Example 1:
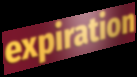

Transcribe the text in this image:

expiration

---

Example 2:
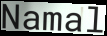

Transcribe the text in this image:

Namal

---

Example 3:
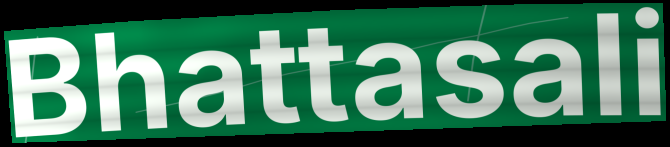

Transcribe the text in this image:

Bhattasali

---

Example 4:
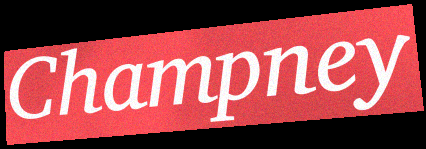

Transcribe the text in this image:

Champney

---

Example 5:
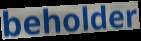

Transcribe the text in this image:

beholder